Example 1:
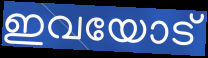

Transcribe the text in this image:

ഇവയോട്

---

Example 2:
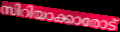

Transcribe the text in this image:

സിറിയാക്കാരോട്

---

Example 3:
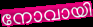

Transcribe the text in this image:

നോവായി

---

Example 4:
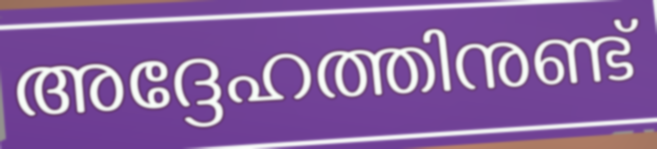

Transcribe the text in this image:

അദ്ദേഹത്തിനുണ്ട്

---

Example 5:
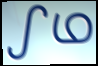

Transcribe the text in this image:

ഽഥ